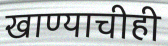
खाण्याचीही